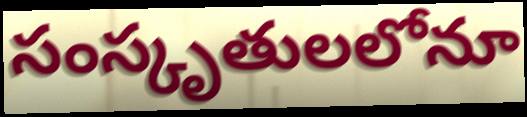
సంస్కృతులలోనూ